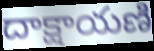
దాక్షాయణి